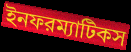
ইনফরম্যাটিকস